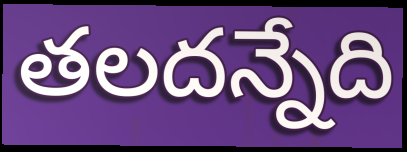
తలదన్నేది